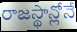
రాజస్థాన్లోనే